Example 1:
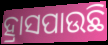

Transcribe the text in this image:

ହ୍ରାସପାଉଛି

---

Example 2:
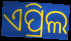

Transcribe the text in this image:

ଏପ୍ରିଲ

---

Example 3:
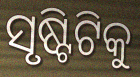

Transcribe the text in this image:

ସୃଷ୍ଟିଟିକୁ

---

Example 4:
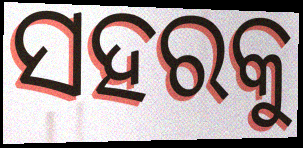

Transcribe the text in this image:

ସହରକୁ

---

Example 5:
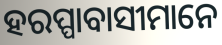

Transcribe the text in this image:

ହରପ୍ପାବାସୀମାନେ